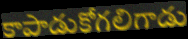
కాపాడుకోగలిగాడు